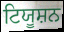
ਟਿਯੂਸ਼ਨ